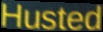
Husted